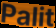
Palit